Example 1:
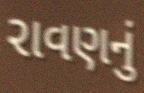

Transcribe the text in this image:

રાવણનું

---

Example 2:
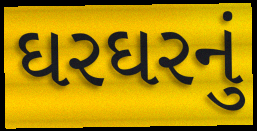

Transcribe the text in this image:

ઘરઘરનું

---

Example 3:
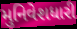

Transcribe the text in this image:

મુનિવેશધારી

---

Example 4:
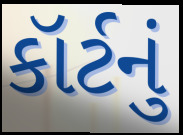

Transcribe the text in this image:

કૉર્ટનું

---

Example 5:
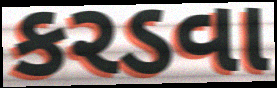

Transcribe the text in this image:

કરડવા